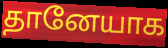
தானேயாக